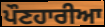
ਪੌਣਹਾਰੀਆ